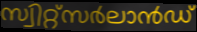
സ്വിറ്റ്സർലാൻഡ്